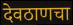
देवठाणचा